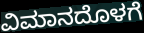
ವಿಮಾನದೊಳಗೆ